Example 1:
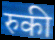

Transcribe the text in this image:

रुकी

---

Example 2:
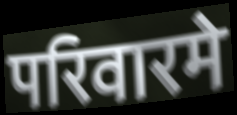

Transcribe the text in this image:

परिवारमे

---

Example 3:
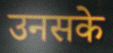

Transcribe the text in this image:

उनसके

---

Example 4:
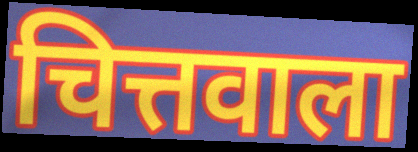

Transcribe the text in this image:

चित्तवाला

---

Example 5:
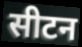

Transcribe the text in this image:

सीटन